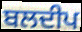
ਬਲਦੀਪ